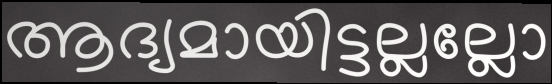
ആദ്യമായിട്ടല്ലല്ലോ